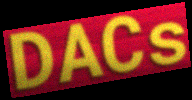
DACs